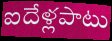
ఐదేళ్లపాటు